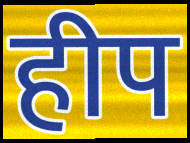
हीप